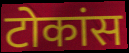
टोकांस